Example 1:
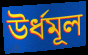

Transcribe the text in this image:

উর্ধমূল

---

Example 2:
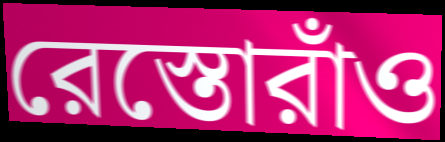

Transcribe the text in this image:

রেস্তোরাঁও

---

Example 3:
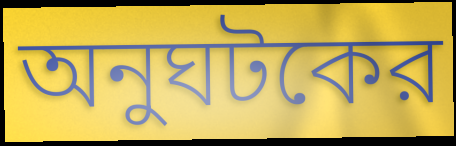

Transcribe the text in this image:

অনুঘটকের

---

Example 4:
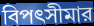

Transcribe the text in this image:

বিপৎসীমার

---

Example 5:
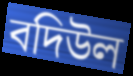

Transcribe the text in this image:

বদিউল